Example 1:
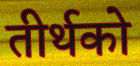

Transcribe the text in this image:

तीर्थको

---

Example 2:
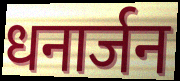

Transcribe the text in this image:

धनार्जन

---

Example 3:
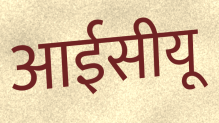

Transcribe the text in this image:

आईसीयू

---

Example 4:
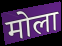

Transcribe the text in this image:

मोला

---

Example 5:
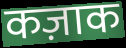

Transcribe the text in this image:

कज़ाक